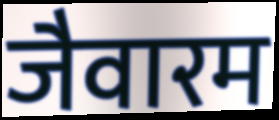
जैवारम